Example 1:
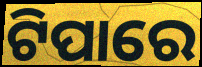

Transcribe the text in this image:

ଟିପାରେ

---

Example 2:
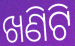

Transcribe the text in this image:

ଖଣିଟି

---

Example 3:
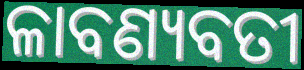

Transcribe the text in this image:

ଳାବଣ୍ୟବତୀ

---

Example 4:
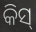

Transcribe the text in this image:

କିସ୍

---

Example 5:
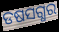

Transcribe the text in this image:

ଡଷସଗ୍ଧର